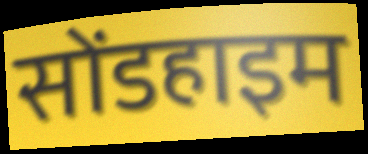
सोंडहाइम